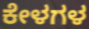
ಕೇಳಗಳ